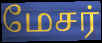
மேசர்